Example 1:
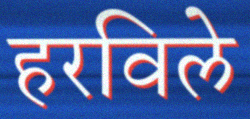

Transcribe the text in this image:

हरविले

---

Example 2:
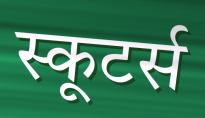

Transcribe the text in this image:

स्कूटर्स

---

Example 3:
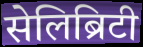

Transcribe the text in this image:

सेलिब्रिटी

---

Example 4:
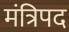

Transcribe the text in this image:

मंत्रिपद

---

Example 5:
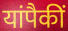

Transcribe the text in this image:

यांपैकीं